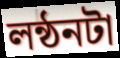
লন্ঠনটা